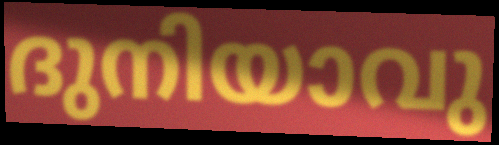
ദുനിയാവു